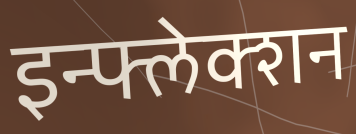
इन्फ्लेक्शन